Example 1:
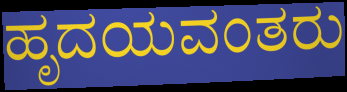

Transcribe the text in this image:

ಹೃದಯವಂತರು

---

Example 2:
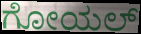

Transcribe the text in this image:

ಗೋಯಲ್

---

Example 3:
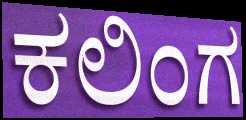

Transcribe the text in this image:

ಕಲಿಂಗ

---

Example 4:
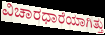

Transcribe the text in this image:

ವಿಚಾರಧಾರೆಯಾಗಿತ್ತು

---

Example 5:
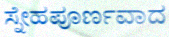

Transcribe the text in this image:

ಸ್ನೇಹಪೂರ್ಣವಾದ